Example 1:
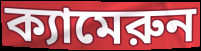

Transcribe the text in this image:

ক্যামেরুন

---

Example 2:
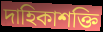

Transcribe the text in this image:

দাহিকাশক্তি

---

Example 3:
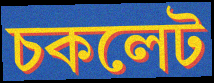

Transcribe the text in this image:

চকলেট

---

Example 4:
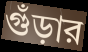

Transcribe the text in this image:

গুঁড়ার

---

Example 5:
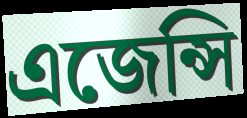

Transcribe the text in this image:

এজেন্সি